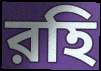
রহি